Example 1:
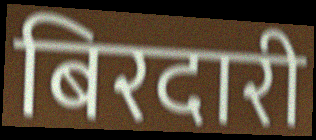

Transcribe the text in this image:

बिरदारी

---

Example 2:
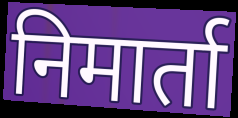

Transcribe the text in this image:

निमार्ता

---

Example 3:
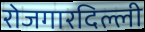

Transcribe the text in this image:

रोजगारदिल्ली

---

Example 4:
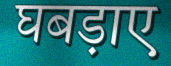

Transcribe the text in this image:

घबड़ाए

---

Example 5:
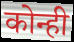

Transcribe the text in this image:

कोन्ही